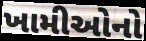
ખામીઓનો